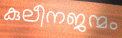
കുലീനജന്മം